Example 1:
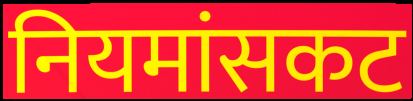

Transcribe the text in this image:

नियमांसकट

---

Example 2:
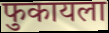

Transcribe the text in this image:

फुकायला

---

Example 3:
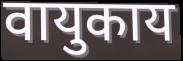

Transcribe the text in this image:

वायुकाय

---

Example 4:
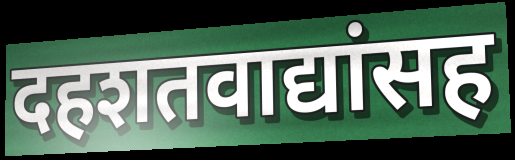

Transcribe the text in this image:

दहशतवाद्यांसह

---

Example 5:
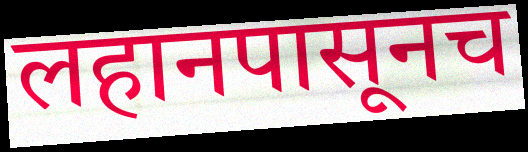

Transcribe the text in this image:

लहानपासूनच